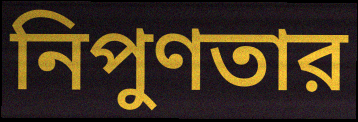
নিপুণতার